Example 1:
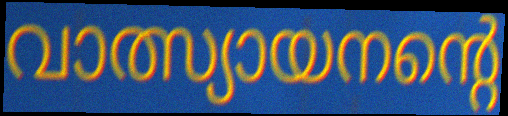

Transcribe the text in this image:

വാത്സ്യായനന്റെ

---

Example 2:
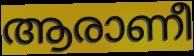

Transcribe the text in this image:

ആരാണീ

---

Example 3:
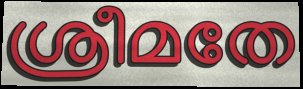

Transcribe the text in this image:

ശ്രീമതേ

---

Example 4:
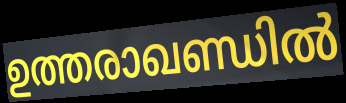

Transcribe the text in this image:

ഉത്തരാഖണ്ഡിൽ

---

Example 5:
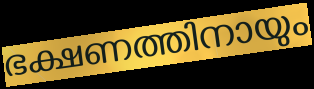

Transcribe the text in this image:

ഭക്ഷണത്തിനായും